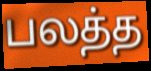
பலத்த